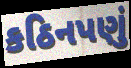
કઠિનપણું